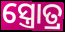
ସ୍ତ୍ରୋତ୍ର